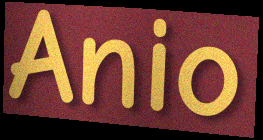
Anio